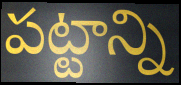
పట్టాన్ని